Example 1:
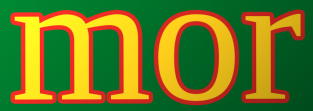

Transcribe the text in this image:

mor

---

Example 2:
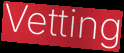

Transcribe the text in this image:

Vetting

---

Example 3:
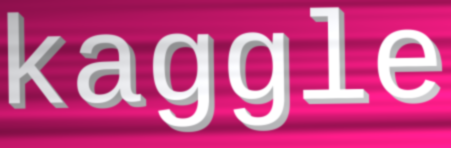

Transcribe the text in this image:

kaggle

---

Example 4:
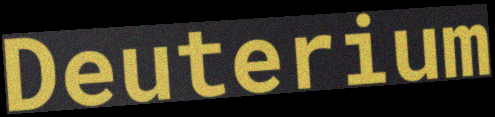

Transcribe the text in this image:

Deuterium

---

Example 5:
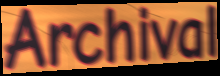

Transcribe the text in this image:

Archival